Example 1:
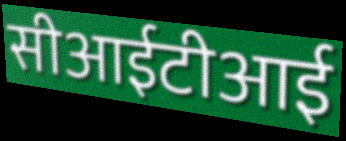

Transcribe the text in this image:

सीआईटीआई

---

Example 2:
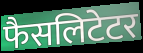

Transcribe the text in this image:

फैसलिटेटर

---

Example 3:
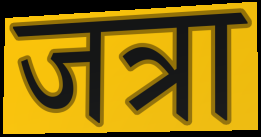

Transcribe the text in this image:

जत्रा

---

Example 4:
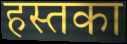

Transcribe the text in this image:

हस्तका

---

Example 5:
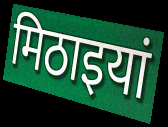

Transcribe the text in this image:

मिठाइयां